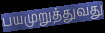
பயமுறுத்துவது